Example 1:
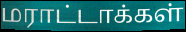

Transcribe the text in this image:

மராட்டாக்கள்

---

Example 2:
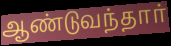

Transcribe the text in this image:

ஆண்டுவந்தார்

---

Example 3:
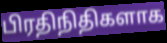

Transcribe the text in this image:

பிரதிநிதிகளாக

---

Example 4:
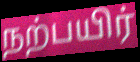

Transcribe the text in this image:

நற்பயிர்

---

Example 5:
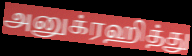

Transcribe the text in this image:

அனுக்ரஹித்து